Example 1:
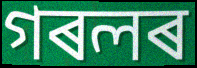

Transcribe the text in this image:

গৰলৰ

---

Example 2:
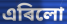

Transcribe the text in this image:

এৰিলো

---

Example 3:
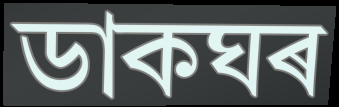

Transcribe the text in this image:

ডাকঘৰ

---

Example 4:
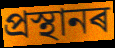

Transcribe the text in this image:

প্ৰস্থানৰ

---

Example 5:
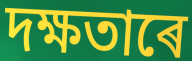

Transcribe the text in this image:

দক্ষতাৰে